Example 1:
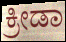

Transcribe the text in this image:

ಕ್ರೀಡಾ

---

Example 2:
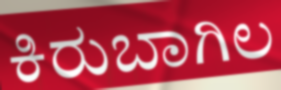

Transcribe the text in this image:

ಕಿರುಬಾಗಿಲ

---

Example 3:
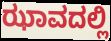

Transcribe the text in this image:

ಝಾವದಲ್ಲಿ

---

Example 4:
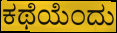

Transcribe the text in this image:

ಕಥೆಯೆಂದು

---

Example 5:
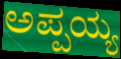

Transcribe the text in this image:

ಅಪ್ಪಯ್ಯ